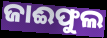
ଜାଈଫୁଲ